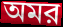
অমর